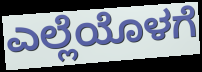
ಎಲ್ಲೆಯೊಳಗೆ